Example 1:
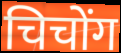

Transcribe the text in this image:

चिचोंग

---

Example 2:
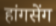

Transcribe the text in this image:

हांगसेंग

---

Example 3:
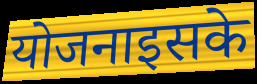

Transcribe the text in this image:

योजनाइसके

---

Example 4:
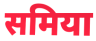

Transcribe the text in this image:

समिया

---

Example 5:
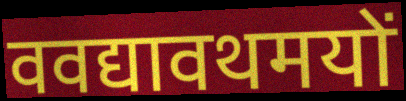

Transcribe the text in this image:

ववद्यावथमयों